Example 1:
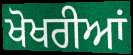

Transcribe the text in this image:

ਖੋਖਰੀਆਂ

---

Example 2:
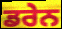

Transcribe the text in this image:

ਡਰੇਨ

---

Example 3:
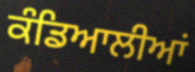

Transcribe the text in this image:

ਕੰਡਿਆਲੀਆਂ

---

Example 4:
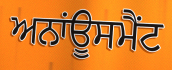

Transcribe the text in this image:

ਅਨਾਂਊਸਮੈਂਟ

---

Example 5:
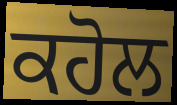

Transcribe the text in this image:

ਕਹੋਲ